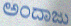
ಅಂದಾಜು